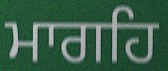
ਮਾਗਹਿ